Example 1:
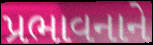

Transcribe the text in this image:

પ્રભાવનાને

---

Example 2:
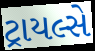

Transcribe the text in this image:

ટ્રાયલ્સે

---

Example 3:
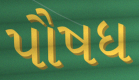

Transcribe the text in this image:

પૌષધ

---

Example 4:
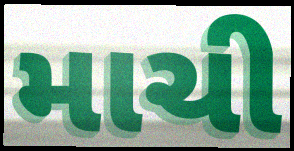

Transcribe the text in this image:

માચી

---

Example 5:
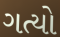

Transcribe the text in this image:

ગત્યો